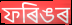
ফৰিঙৰ